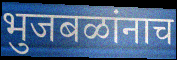
भुजबळांनाच